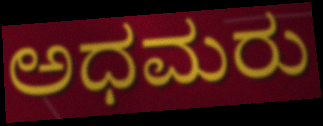
ಅಧಮರು